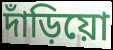
দাঁড়িয়ো